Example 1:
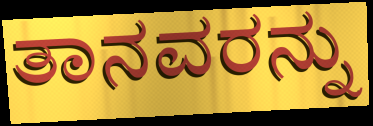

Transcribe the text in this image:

ತಾನವರನ್ನು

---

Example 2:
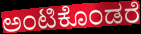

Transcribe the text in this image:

ಅಂಟಿಕೊಂಡರೆ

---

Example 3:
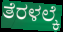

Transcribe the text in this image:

ತೆರಳಲ್ಕೆ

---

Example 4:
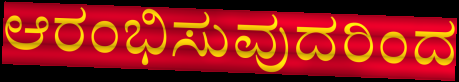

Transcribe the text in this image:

ಆರಂಭಿಸುವುದರಿಂದ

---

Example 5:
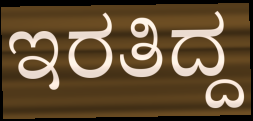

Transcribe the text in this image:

ಇರತಿದ್ದ